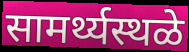
सामर्थ्यस्थळे